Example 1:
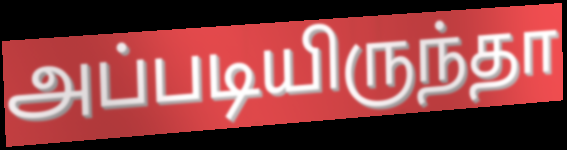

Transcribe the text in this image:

அப்படியிருந்தா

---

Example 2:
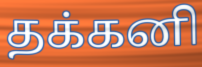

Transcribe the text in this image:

தக்கனி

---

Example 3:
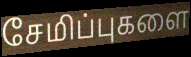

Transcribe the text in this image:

சேமிப்புகளை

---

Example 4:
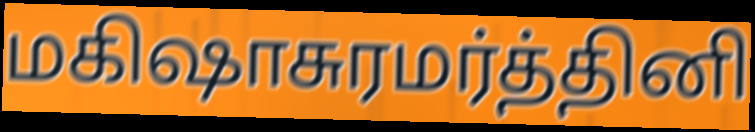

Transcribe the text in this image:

மகிஷாசுரமர்த்தினி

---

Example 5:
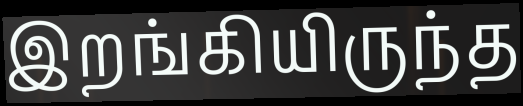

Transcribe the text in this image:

இறங்கியிருந்த